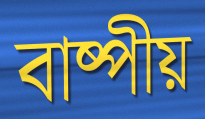
বাষ্পীয়